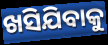
ଖସିଯିବାକୁ